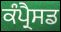
ਕੰਪ੍ਰੈਸਡ